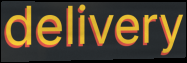
delivery